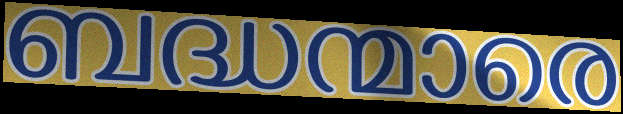
ബദ്ധന്മാരെ